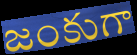
జంకుగా